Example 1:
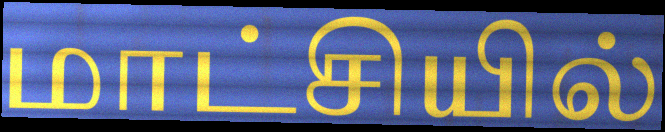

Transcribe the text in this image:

மாட்சியில்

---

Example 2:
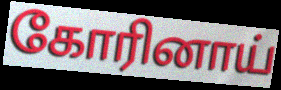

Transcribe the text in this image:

கோரினாய்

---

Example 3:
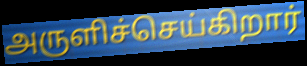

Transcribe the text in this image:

அருளிச்செய்கிறார்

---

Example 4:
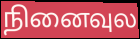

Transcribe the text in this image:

நினைவுல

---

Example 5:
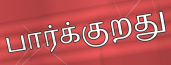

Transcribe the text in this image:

பார்க்குறது